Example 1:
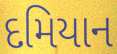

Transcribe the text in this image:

દમિયાન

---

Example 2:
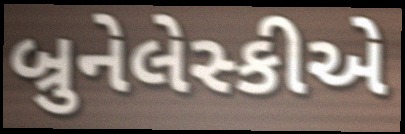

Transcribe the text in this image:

બ્રુનેલેસ્કીએ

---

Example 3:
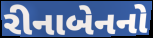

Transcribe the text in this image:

રીનાબેનનો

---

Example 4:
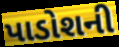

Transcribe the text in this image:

પાડોશની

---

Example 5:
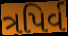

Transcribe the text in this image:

ત્રપિર્વ